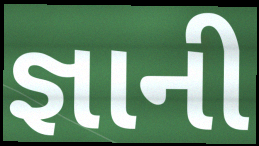
જ્ઞાની